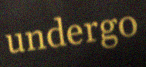
undergo